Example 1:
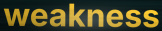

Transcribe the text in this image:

weakness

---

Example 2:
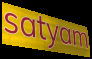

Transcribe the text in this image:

satyam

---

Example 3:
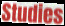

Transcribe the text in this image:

Studies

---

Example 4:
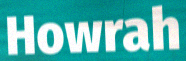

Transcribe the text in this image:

Howrah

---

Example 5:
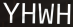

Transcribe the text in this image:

YHWH